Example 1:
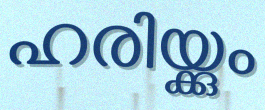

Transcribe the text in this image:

ഹരിയ്ക്കും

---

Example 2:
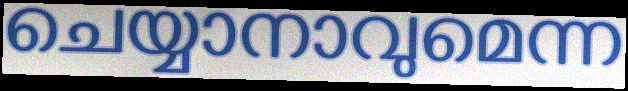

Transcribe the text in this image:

ചെയ്യാനാവുമെന്ന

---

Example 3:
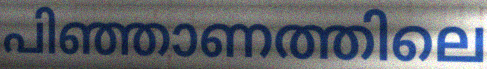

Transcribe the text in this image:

പിഞ്ഞാണത്തിലെ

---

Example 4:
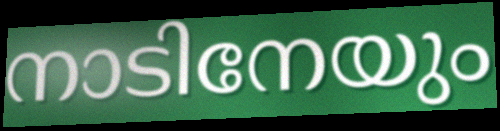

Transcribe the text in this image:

നാടിനേയും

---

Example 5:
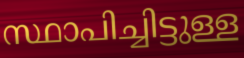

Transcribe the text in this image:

സ്ഥാപിച്ചിട്ടുള്ള